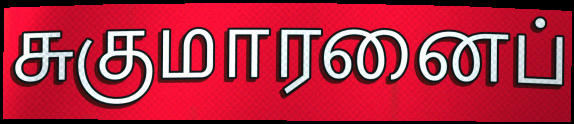
சுகுமாரனைப்